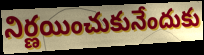
నిర్ణయించుకునేందుకు